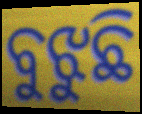
ବୁଝୁଛି